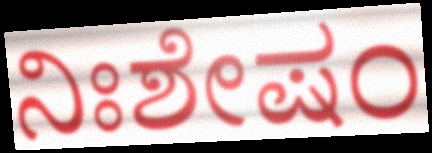
ನಿಃಶೇಷಂ